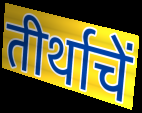
तीर्थाचें